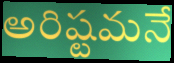
అరిష్టమనే